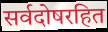
सर्वदोषरहित